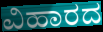
ವಿಹಾರದ